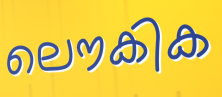
ലൌകിക